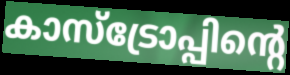
കാസ്ട്രോപ്പിന്റെ